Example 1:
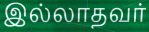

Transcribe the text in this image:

இல்லாதவர்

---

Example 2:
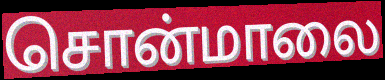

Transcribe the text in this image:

சொன்மாலை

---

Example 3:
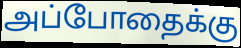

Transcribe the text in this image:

அப்போதைக்கு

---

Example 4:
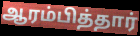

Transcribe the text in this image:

ஆரம்பித்தார்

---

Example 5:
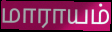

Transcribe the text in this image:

மாராயம்